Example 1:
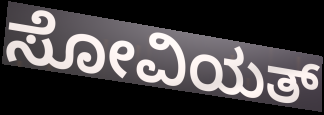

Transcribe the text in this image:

ಸೋವಿಯತ್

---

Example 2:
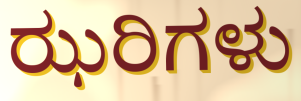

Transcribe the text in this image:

ಝರಿಗಳು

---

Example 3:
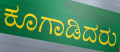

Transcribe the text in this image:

ಕೂಗಾಡಿದರು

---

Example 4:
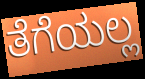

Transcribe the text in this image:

ತೆಗೆಯಲ್ಲ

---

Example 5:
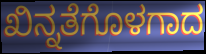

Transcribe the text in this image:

ಖಿನ್ನತೆಗೊಳಗಾದ